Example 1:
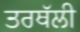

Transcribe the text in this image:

ਤਰਥੱਲੀ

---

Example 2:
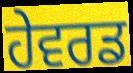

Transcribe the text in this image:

ਹੇਵਰਡ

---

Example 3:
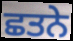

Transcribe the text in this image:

ਛਤਨੇ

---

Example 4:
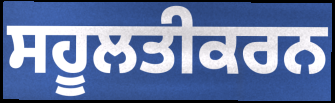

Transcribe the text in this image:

ਸਹੂਲਤੀਕਰਨ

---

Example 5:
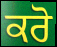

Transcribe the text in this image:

ਕਰੋ